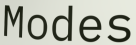
Modes